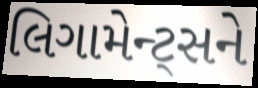
લિગામેન્ટ્સને